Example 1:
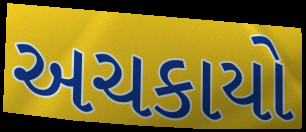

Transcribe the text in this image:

અચકાયો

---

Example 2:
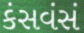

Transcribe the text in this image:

કંસવંસં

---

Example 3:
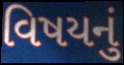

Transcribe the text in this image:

વિષયનું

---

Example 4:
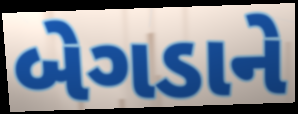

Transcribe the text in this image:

બેગડાને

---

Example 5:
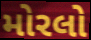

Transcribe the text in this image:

મોરલો